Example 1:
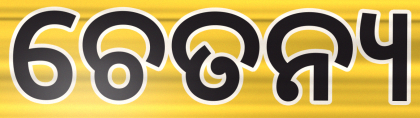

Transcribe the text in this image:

ଚେତନ୍ୟ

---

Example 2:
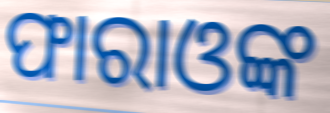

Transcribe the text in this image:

ଫାରାଓଙ୍କ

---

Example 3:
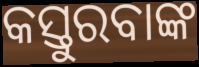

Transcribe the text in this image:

କସ୍ତୁରବାଙ୍କ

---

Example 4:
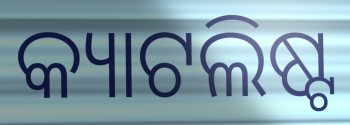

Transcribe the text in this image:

କ୍ୟାଟଲିଷ୍ଟ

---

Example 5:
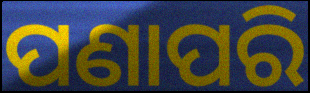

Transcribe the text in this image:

ପଣାପରି